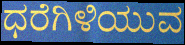
ಧರೆಗಿಳಿಯುವ